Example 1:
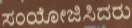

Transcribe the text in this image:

ಸಂಯೋಜಿಸಿದರು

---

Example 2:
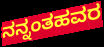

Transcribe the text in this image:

ನನ್ನಂತಹವರ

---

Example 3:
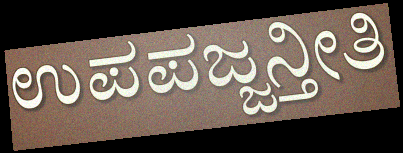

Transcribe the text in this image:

ಉಪಪಜ್ಜನ್ತೀತಿ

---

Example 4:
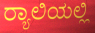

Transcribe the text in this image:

ರ‍್ಯಾಲಿಯಲ್ಲಿ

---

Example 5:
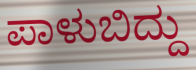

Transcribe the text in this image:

ಪಾಳುಬಿದ್ದು